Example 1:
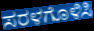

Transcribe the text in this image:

ಸರಳಗೊಳಿಸಿ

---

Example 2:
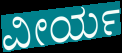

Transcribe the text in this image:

ವೀರ್ಯ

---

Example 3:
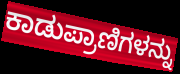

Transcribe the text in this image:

ಕಾಡುಪ್ರಾಣಿಗಳನ್ನು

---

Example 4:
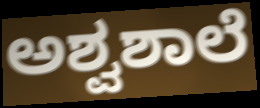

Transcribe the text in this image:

ಅಶ್ವಶಾಲೆ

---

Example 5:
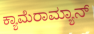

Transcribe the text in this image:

ಕ್ಯಾಮೆರಾಮ್ಯಾನ್